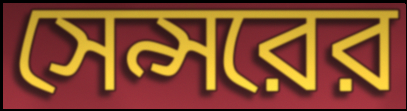
সেন্সরের